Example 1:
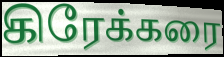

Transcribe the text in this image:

கிரேக்கரை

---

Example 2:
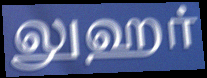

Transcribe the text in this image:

லுஹர்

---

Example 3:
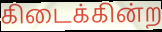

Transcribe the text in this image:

கிடைக்கின்ற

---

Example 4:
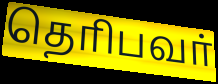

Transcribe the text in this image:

தெரிபவர்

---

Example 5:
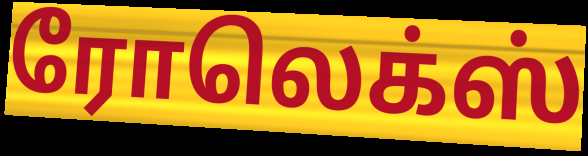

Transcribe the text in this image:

ரோலெக்ஸ்